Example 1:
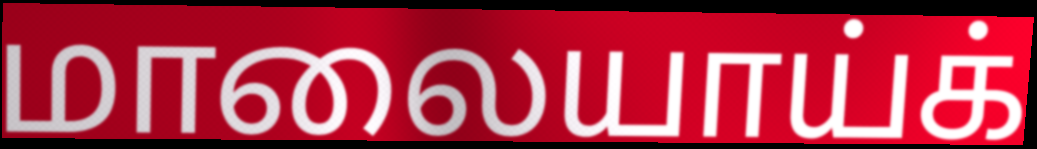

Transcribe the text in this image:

மாலையாய்க்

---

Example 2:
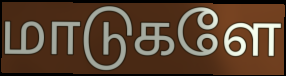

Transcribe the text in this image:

மாடுகளே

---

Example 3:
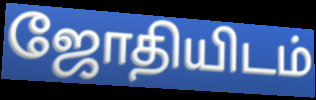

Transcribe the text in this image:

ஜோதியிடம்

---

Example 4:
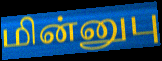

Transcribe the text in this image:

மின்னுபு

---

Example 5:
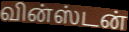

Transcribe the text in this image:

வின்ஸ்டன்